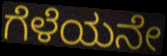
ಗೆಳೆಯನೇ